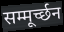
सम्मूर्च्छन